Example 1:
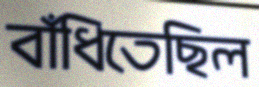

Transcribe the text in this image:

বাঁধিতেছিল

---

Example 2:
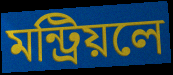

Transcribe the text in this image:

মন্ট্রিয়লে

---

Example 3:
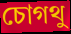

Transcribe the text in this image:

চোগথু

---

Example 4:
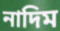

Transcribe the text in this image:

নাদিম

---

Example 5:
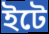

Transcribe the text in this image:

ইটে